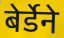
बेर्डेने